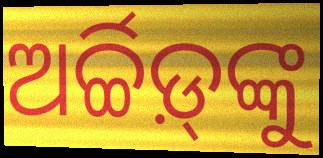
ଅର୍ଚ୍ଚିଡ଼୍‌ଙ୍କୁ